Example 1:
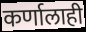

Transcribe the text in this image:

कर्णालाही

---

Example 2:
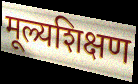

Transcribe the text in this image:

मूल्यशिक्षण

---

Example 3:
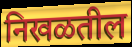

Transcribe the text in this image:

निखळतील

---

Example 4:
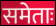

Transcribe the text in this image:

समेताः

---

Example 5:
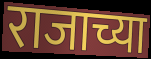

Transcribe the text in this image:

राजाच्या